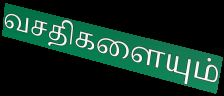
வசதிகளையும்